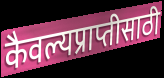
कैवल्यप्राप्तीसाठी